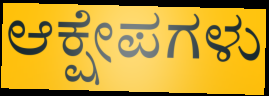
ಆಕ್ಷೇಪಗಳು